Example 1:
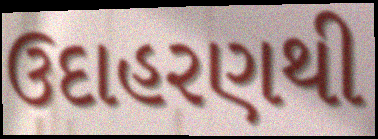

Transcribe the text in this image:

ઉદાહરણથી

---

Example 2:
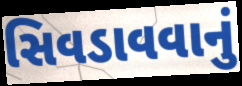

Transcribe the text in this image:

સિવડાવવાનું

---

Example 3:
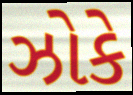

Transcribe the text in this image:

ઝોકે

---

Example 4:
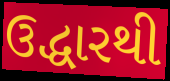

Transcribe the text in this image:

ઉદ્ધારથી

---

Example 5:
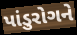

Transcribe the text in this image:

પાંડુરોગને